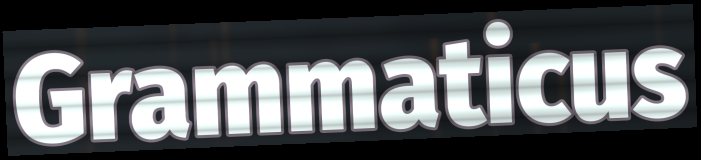
Grammaticus